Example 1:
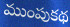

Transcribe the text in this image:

ముంపుకథ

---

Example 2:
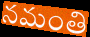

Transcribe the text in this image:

నమంతి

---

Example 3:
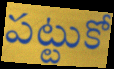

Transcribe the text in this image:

పట్టుకో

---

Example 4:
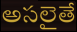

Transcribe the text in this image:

అసలైతే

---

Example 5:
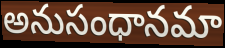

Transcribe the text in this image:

అనుసంధానమా